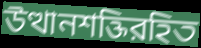
উত্থানশক্তিরহিত